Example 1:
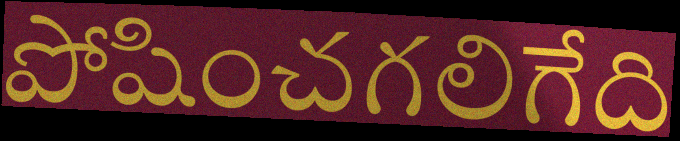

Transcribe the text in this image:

పోషించగలిగేది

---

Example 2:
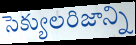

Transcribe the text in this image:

సెక్యులరిజాన్ని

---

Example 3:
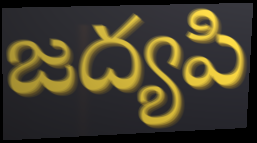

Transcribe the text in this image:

జద్యపి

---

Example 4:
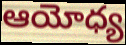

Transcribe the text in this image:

ఆయోధ్య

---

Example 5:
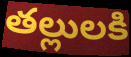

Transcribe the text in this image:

తల్లులకి